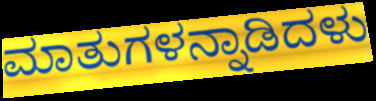
ಮಾತುಗಳನ್ನಾಡಿದಳು